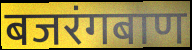
बजरंगबाण